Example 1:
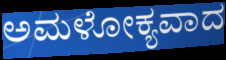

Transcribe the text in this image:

ಅಮಳೋಕ್ಯವಾದ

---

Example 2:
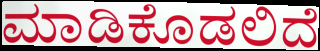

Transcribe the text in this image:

ಮಾಡಿಕೊಡಲಿದೆ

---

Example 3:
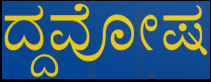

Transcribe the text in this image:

ದ್ದವೋಷ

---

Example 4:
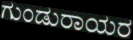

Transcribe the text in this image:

ಗುಂಡುರಾಯರ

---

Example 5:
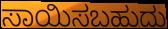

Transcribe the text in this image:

ಸಾಯಿಸಬಹುದು